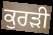
ਕੁਰੜੀ